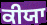
ਕੀਯਾ